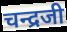
चन्द्रजी